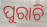
ପୁରାଚି